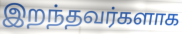
இறந்தவர்களாக